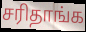
சரிதாங்க